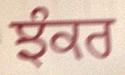
ਝੰਕਰ